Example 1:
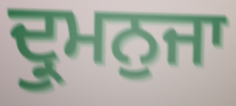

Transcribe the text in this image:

ਦ੍ਰੁਮਨੁਜਾ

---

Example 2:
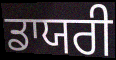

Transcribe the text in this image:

ਡਾਯਰੀ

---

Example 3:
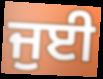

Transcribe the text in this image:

ਜੁਈ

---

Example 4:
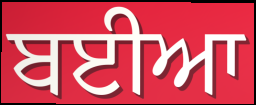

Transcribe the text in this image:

ਬਈਆ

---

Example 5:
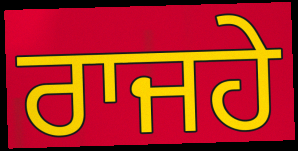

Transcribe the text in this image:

ਰਾਜਹੇ